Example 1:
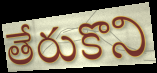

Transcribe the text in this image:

తేరుకొని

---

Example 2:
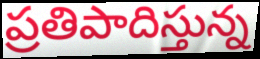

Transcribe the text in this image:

ప్రతిపాదిస్తున్న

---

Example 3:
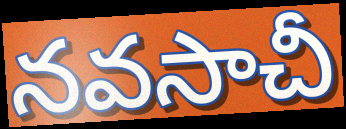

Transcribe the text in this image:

నవసాచీ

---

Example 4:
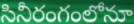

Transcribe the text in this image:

సినీరంగంలోనూ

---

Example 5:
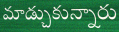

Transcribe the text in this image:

మాడ్చుకున్నారు